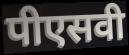
पीएसवी